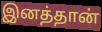
இனத்தான்